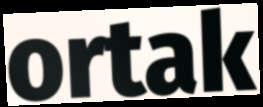
ortak